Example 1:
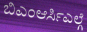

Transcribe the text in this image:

ಬಿಎಂಆರ್ಸಿಎಲ್ಗೆ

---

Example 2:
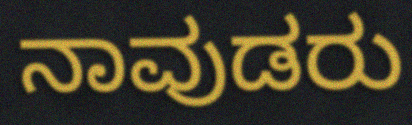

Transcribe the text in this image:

ನಾವುಡರು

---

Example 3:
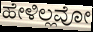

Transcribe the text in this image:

ಹೇಳಿಲ್ಲವೋ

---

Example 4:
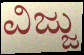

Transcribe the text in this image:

ವಿಜ್ಜು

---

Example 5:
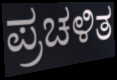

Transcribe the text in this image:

ಪ್ರಚಳಿತ